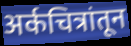
अर्कचित्रांतून